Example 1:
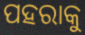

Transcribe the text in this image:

ପହରାକୁ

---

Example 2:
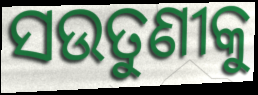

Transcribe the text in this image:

ସଉତୁଣୀକୁ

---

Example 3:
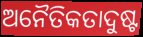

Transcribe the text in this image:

ଅନୈତିକତାଦୁଷ୍ଟ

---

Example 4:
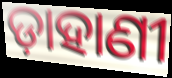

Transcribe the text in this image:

ଡ଼ାହାଣୀ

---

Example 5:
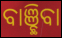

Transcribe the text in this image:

ବାଞ୍ଛିବା